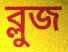
ব্লুজ